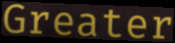
Greater